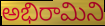
అభిరామిని